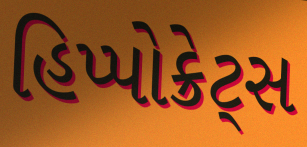
હિપ્પોક્રેટ્સ